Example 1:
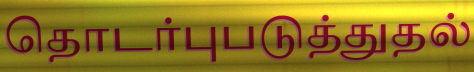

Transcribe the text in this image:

தொடர்புபடுத்துதல்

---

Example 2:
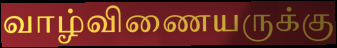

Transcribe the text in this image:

வாழ்விணையருக்கு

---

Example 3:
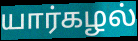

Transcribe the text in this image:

யார்கழல்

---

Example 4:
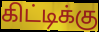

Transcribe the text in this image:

கிட்டிக்கு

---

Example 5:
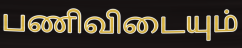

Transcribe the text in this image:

பணிவிடையும்